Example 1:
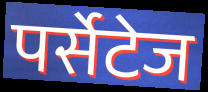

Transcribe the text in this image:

पर्सेटेज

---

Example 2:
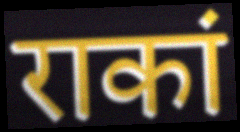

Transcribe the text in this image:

राकां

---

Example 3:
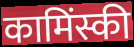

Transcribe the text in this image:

कामिंस्की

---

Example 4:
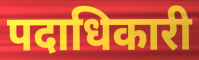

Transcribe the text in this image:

पदाधिकारी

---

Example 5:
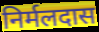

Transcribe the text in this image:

निर्मलदास